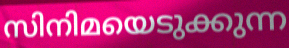
സിനിമയെടുക്കുന്ന